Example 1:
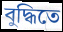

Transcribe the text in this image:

বুদ্ধিতে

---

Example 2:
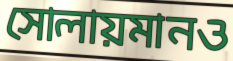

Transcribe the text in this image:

সোলায়মানও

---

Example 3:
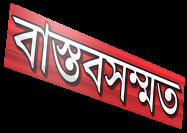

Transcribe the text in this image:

বাস্তবসম্মত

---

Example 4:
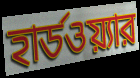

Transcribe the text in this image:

হার্ডওয়্যার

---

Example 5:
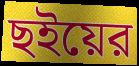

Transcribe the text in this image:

ছইয়ের